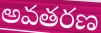
అవతరణ